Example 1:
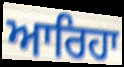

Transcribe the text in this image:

ਆਰਿਹਾ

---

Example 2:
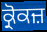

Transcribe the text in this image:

ਕ੍ਰੋਕਜ਼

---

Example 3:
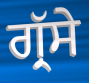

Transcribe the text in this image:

ਗ੍ਰੱਸੇ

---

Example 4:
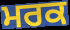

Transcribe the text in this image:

ਮਰਕ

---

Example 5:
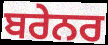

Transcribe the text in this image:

ਬਰੇਨਰ